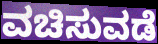
ವಚಿಸುವಡೆ